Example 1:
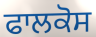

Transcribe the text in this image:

ਫਾਲਕੋਸ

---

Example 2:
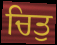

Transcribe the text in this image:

ਚਿਤੁ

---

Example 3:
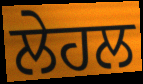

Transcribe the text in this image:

ਲੇਹਲ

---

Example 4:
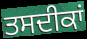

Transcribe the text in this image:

ਤਸਦੀਕਾਂ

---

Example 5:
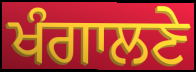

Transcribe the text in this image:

ਖੰਗਾਲਣੇ